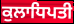
ਕੁਲਾਧਿਪਤੀ